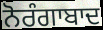
ਨੋਰੰਗਾਬਾਦ